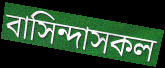
বাসিন্দাসকল